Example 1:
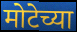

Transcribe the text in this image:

मोटेच्या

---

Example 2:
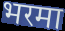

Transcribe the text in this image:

भरमा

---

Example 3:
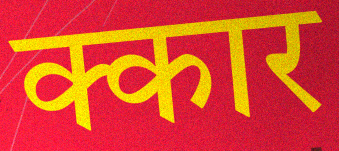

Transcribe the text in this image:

क्कार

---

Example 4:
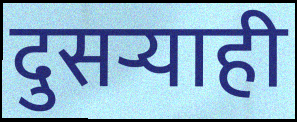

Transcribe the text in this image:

दुसर्‍याही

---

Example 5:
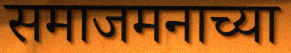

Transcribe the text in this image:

समाजमनाच्या